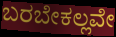
ಬರಬೇಕಲ್ಲವೇ